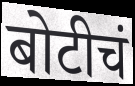
बोटीचं